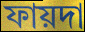
ফায়দা